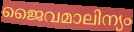
ജൈവമാലിന്യം